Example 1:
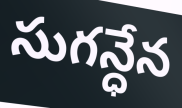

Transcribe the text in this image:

సుగన్ధేన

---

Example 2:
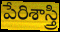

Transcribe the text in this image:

పేరిశాస్త్రి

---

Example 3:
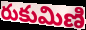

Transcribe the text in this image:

రుకుమిణి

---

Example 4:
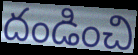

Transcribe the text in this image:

దండించి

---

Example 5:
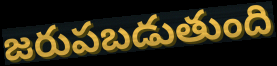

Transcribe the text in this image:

జరుపబడుతుంది